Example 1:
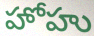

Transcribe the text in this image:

హోహు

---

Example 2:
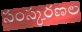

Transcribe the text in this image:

సంస్కరణల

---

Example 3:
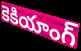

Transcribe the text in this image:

కెకియాంగ్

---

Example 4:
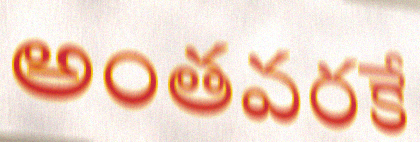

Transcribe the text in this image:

అంతవరకే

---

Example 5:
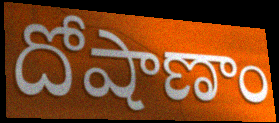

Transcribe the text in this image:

దోషాణాం